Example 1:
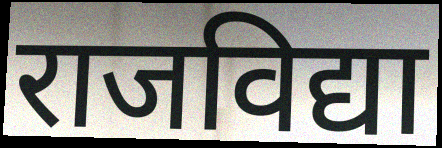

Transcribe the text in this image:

राजविद्या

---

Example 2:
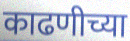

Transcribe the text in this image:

काढणीच्या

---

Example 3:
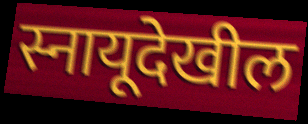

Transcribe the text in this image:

स्नायूदेखील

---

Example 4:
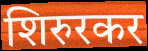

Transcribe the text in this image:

शिरुरकर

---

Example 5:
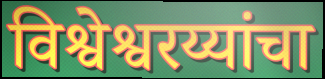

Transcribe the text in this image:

विश्वेश्वरय्यांचा